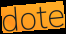
dote